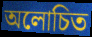
অলোচিত